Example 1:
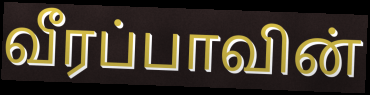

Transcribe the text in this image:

வீரப்பாவின்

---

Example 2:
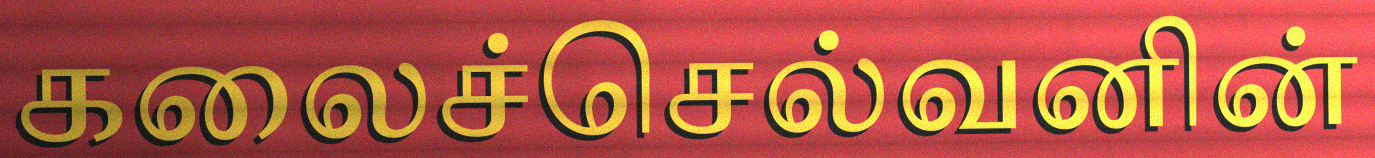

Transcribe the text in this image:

கலைச்செல்வனின்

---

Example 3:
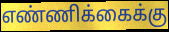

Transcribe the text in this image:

எண்ணிக்கைக்கு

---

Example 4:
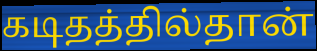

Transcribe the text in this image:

கடிதத்தில்தான்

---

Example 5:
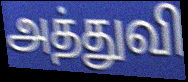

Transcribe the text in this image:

அத்துவி